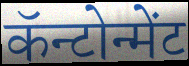
कॅन्टोन्मेंट